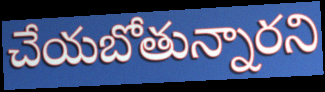
చేయబోతున్నారని